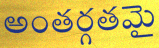
అంతర్గతమై